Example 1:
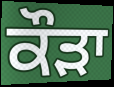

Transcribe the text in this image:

ਕੌਡ਼ਾ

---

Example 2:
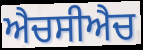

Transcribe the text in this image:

ਐਚਸੀਐਚ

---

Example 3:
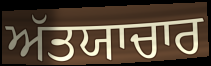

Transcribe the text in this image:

ਅੱਤਯਾਚਾਰ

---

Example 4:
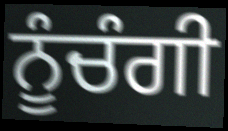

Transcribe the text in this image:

ਨੂੰਚੰਗੀ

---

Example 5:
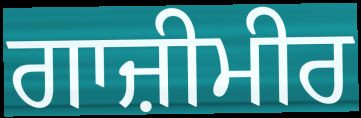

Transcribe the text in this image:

ਗਾਜ਼ੀਮੀਰ